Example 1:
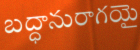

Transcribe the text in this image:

బద్ధానురాగయై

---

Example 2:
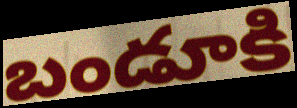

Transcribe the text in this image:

బండూకి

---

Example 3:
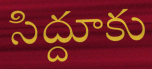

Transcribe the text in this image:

సిద్దూకు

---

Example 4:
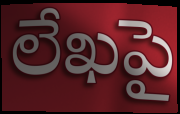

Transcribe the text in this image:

లేఖపై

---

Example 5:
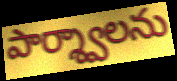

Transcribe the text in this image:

పార్శ్వాలను